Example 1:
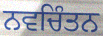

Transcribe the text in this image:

ਨਵਚਿੰਤਨ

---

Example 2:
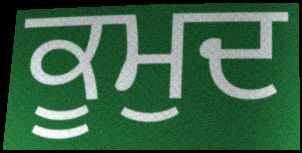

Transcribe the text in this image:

ਕੂਮੁਦ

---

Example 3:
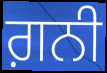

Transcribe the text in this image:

ਗ਼ਨੀ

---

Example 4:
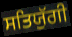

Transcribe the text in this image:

ਸਤਿਯੁੱਗੀ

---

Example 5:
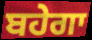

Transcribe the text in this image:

ਬਹੇਗਾ